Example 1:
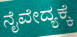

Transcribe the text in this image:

ನೈವೇದ್ಯಕ್ಕೆ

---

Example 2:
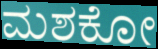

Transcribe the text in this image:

ಮಶಕೋ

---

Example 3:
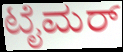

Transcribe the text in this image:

ಟೈಮರ್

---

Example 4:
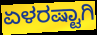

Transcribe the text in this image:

ಏಳರಷ್ಟಾಗಿ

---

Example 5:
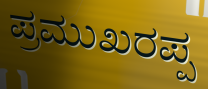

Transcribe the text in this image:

ಪ್ರಮುಖರಪ್ಪ